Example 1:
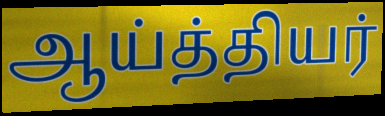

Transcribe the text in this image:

ஆய்த்தியர்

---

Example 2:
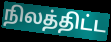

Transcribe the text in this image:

நிலத்திட்ட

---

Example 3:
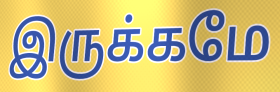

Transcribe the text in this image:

இருக்கமே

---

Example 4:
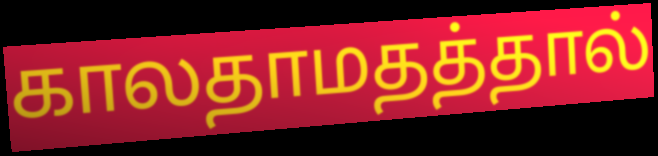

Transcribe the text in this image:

காலதாமதத்தால்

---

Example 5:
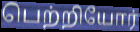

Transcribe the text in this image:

பெற்றியோர்